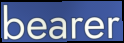
bearer